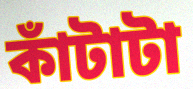
কাঁটাটা